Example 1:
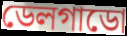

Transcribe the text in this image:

ডেলগাডো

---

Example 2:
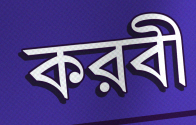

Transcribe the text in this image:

করবী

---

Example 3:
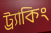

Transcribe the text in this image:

ট্র্যাকিং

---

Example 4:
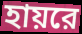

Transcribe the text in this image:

হায়রে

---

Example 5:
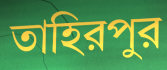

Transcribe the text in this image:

তাহিরপুর